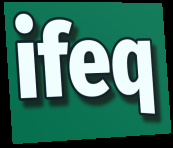
ifeq